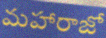
మహారాజో